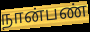
நான்பண்